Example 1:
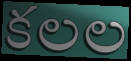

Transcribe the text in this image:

కలల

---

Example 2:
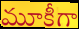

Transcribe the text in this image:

మూకీగా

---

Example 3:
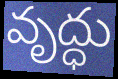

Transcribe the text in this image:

వృద్ధు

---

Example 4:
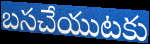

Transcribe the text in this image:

బసచేయుటకు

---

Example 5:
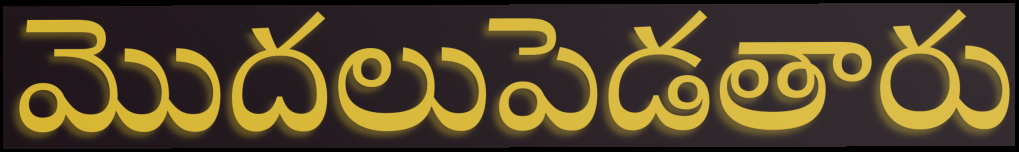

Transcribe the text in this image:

మొదలుపెడతారు